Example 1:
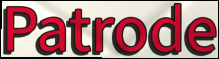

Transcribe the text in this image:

Patrode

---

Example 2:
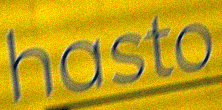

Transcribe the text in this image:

hasto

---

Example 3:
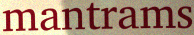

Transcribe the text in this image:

mantrams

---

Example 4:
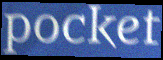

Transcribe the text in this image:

pocket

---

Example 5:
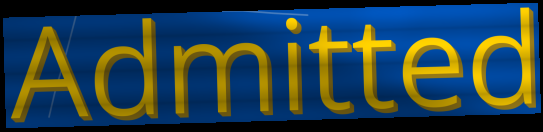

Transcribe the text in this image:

Admitted